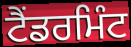
ਟੈਂਡਰਮਿੰਟ